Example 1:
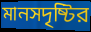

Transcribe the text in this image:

মানসদৃষ্টির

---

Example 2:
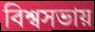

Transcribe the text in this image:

বিশ্বসভায়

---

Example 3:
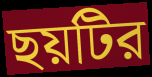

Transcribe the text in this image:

ছয়টির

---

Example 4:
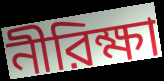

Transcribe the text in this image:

নীরিক্ষা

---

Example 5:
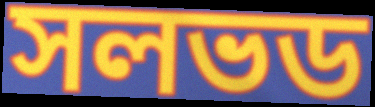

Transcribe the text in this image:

সলভড